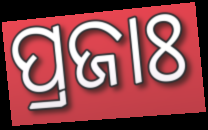
ପ୍ରଜାଃ